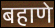
बहाणे